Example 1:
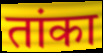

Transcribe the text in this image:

तांका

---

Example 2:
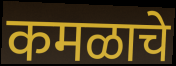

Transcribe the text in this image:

कमळाचे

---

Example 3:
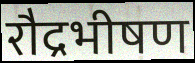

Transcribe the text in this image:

रौद्रभीषण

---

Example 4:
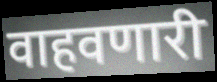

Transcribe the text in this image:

वाहवणारी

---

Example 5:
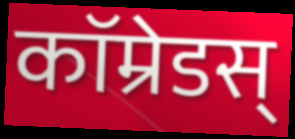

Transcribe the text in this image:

कॉम्रेडस्